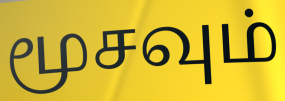
மூசவும்